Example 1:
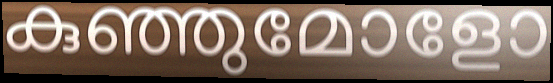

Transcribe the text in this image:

കുഞ്ഞുമോളോ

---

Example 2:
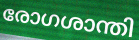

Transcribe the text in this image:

രോഗശാന്തി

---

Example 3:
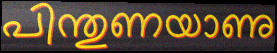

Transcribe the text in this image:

പിന്തുണയാണു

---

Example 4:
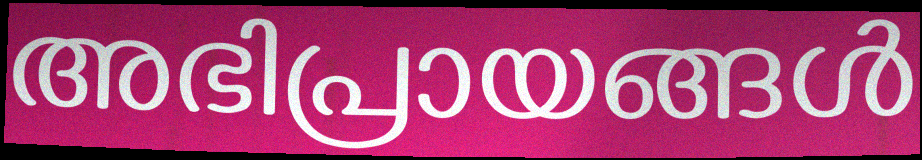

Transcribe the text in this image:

അഭിപ്രായങ്ങൾ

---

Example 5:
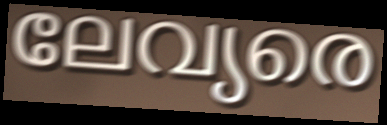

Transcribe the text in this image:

ലേവ്യരെ